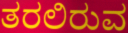
ತರಲಿರುವ